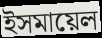
ইসমায়েল